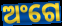
ଅଂଗେ